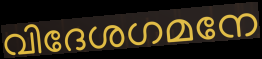
വിദേശഗമനേ